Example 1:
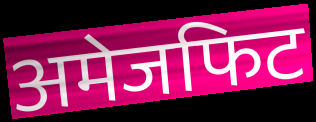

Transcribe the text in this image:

अमेजफिट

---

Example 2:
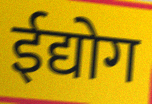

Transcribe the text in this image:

ईद्योग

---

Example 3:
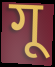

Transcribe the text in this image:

गू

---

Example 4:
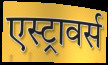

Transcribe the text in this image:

एस्ट्रावर्स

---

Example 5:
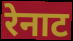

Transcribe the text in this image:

रेनाट